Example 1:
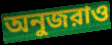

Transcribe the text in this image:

অনুজরাও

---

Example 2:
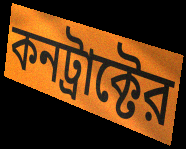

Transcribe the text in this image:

কনট্রাক্টের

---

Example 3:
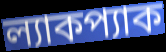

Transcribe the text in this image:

ল্যাকপ্যাক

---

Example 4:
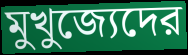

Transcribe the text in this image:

মুখুজ্যেদের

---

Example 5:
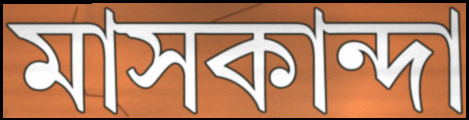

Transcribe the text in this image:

মাসকান্দা